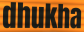
dhukha